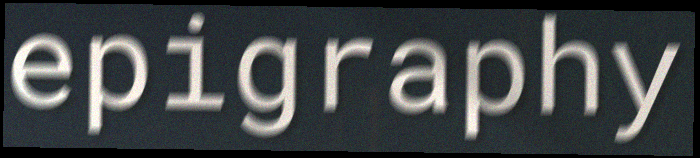
epigraphy